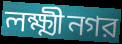
লক্ষ্মীনগর